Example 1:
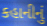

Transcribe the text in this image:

કહાનીનું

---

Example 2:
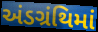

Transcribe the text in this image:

અંડગ્રંથિમાં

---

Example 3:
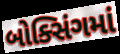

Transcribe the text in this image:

બોક્સિંગમાં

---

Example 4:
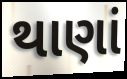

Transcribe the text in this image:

થાણાં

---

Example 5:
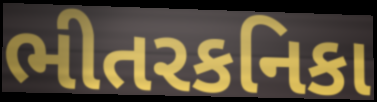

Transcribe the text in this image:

ભીતરકનિકા